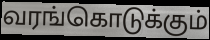
வரங்கொடுக்கும்